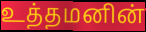
உத்தமனின்